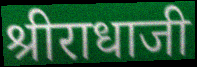
श्रीराधाजी